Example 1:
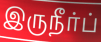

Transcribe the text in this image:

இருநீர்ப்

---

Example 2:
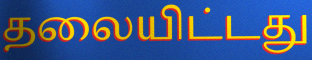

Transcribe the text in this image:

தலையிட்டது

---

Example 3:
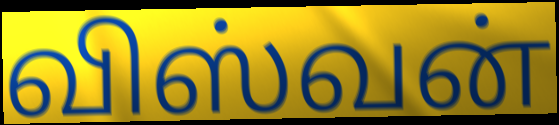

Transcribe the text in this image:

விஸ்வன்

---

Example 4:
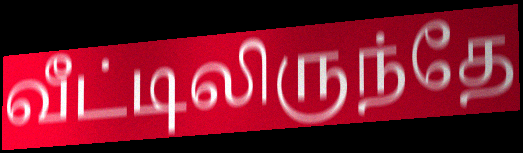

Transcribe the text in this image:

வீட்டிலிருந்தே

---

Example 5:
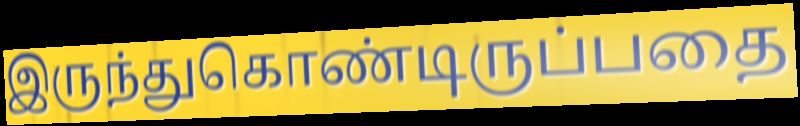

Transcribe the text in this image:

இருந்துகொண்டிருப்பதை